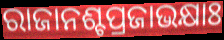
ରାଜାନଶ୍ଚପ୍ରଜାଭକ୍ଷାଃ